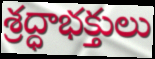
శ్రద్ధాభక్తులు